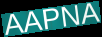
AAPNA